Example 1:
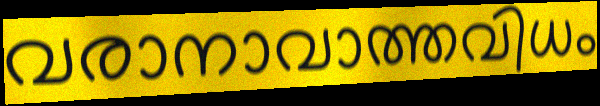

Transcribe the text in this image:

വരാനാവാത്തവിധം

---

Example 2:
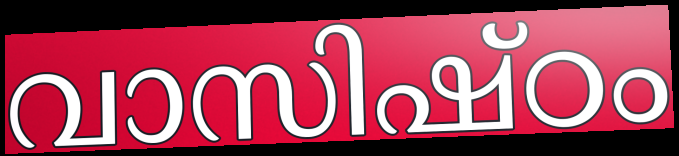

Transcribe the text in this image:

വാസിഷ്ഠം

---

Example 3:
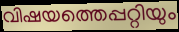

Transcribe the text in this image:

വിഷയത്തെപ്പറ്റിയും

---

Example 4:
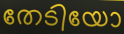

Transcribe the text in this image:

തേടിയോ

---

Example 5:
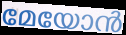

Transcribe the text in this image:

മേയോൻ